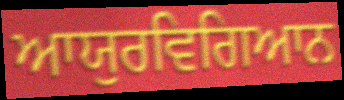
ਆਯੁਰਵਿਗਿਆਨ